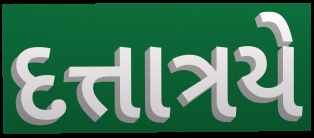
દત્તાત્રયે